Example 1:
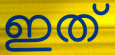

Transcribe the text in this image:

ഇത്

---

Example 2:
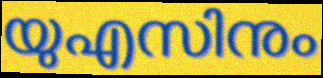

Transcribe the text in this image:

യുഎസിനും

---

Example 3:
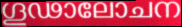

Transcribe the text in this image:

ഗൂഢാലോചന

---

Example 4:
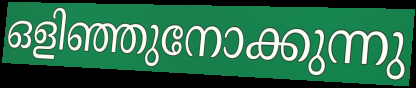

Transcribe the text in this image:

ഒളിഞ്ഞുനോക്കുന്നു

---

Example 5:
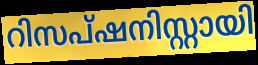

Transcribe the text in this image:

റിസപ്ഷനിസ്റ്റായി